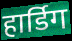
हार्डिग